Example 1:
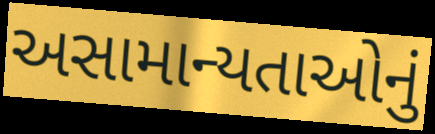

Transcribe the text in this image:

અસામાન્યતાઓનું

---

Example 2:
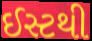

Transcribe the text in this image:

ઈસ્ટથી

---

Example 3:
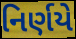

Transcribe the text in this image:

નિર્ણયે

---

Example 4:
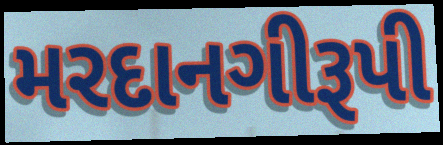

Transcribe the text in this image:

મરદાનગીરૂપી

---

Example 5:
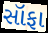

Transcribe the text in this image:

સૉફા